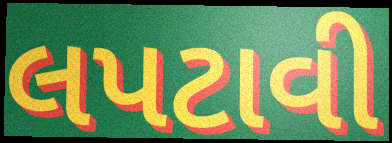
લપટાવી